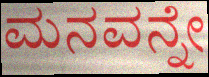
ಮನವನ್ನೇ